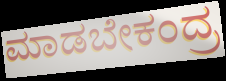
ಮಾಡಬೇಕಂದ್ರ